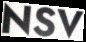
NSV